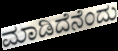
ಮಾಡಿದೆನೆಂದು